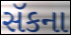
સૅકના